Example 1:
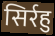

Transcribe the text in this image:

सिर्रहु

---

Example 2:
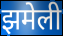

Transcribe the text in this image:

झमेली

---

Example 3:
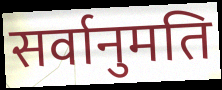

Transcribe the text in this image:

सर्वानुमति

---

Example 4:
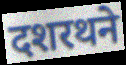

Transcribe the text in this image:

दशरथने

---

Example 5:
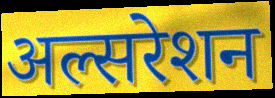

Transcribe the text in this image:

अल्सरेशन